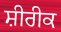
ਸ਼ੀਰੀਕ